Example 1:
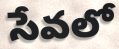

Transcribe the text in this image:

సేవలో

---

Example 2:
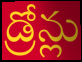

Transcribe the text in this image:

డ్రోన్లు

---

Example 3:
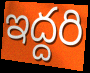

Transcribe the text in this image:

ఇద్దరి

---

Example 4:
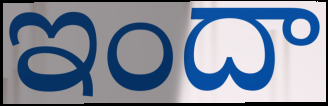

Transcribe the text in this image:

ఇందా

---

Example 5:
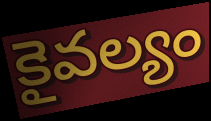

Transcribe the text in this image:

కైవల్యం